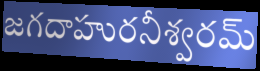
జగదాహురనీశ్వరమ్